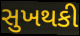
સુખથકી